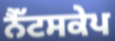
ਨੈੱਟਸਕੇਪ